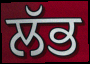
ਲੱਭ